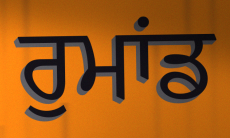
ਰੁਮਾਂਡ